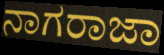
ನಾಗರಾಜಾ